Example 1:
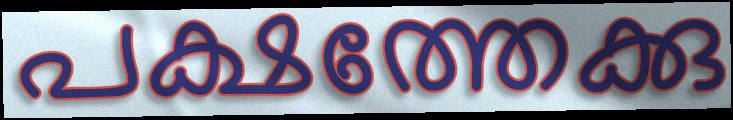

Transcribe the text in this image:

പക്ഷത്തേക്കു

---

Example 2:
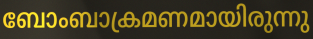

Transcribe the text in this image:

ബോംബാക്രമണമായിരുന്നു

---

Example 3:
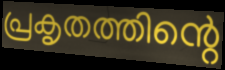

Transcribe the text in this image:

പ്രകൃതത്തിന്റെ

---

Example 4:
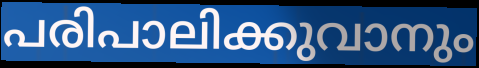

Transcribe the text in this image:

പരിപാലിക്കുവാനും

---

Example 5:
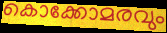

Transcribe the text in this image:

കൊക്കോമരവും